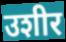
उशीर